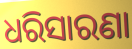
ଧରିସାରଣା